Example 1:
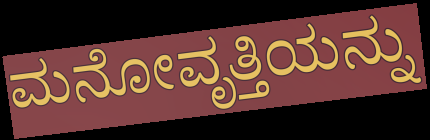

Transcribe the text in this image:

ಮನೋವೃತ್ತಿಯನ್ನು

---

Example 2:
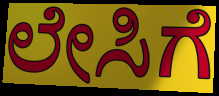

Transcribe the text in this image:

ಲೇಸಿಗೆ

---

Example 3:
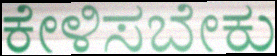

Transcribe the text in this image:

ಕೇಳಿಸಬೇಕು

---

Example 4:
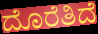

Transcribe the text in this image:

ದೊರೆತಿದೆ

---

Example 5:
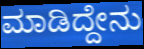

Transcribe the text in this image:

ಮಾಡಿದ್ದೇನು